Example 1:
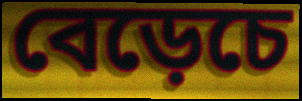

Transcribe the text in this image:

বেড়েচে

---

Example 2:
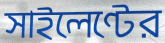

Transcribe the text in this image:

সাইলেণ্টের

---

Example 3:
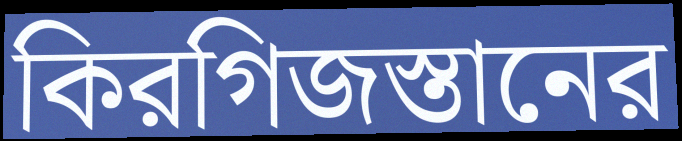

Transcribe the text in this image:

কিরগিজস্তানের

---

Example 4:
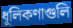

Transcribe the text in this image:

ধূলিকণাগুলি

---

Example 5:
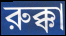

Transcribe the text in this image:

রুক্কা